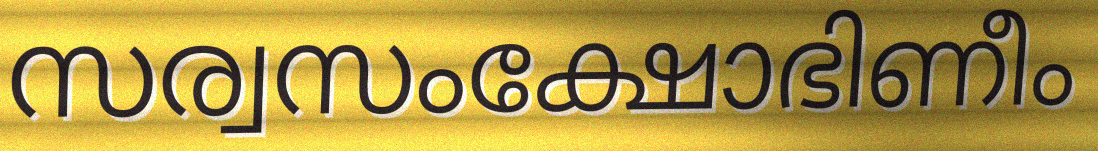
സര്വസംക്ഷോഭിണീം